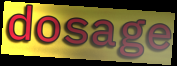
dosage